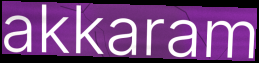
akkaram